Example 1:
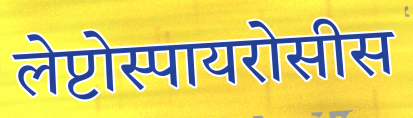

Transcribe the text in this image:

लेप्टोस्पायरोसीस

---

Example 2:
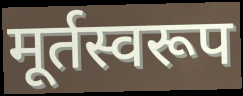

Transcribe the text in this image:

मूर्तस्वरूप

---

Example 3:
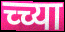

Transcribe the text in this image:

च्च्या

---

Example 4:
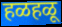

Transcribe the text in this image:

हळहळू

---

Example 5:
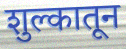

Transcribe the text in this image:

शुल्कातून